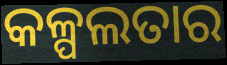
କଳ୍ପଲତାର